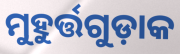
ମୁହୁର୍ତ୍ତଗୁଡ଼ାକ